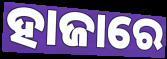
ହାଜାରେ